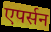
एपर्सन